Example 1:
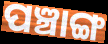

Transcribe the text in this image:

ପଞ୍ଚାଙ୍ଗ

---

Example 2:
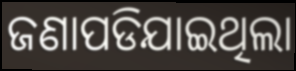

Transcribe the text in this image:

ଜଣାପଡିଯାଇଥିଲା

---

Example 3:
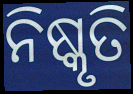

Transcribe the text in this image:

ନିଷ୍କୃତି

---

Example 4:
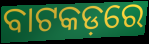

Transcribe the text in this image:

ବାଟକଡ଼ରେ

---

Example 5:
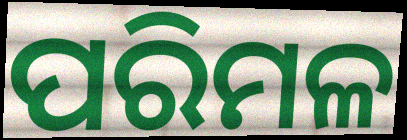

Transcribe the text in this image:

ପରିମଳ